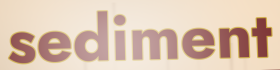
sediment